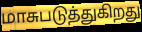
மாசுபடுத்துகிறது